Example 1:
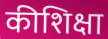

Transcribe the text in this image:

कीशिक्षा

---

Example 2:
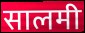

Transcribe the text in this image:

सालमी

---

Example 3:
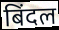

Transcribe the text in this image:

बिंदल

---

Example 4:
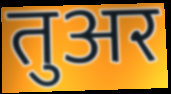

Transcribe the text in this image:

तुअर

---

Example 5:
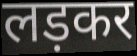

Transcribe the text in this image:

लड़कर